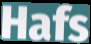
Hafs